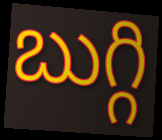
బుగ్గి